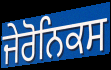
ਜੇਰੋਨਿਕਸ